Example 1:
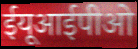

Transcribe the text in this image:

ईयूआईपीओ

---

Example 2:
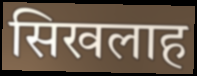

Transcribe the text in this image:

सिखलाह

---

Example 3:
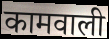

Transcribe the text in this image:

कामवाली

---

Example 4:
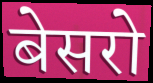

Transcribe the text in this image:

बेसरो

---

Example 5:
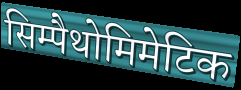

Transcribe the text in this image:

सिम्पैथोमिमेटिक